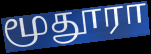
மூதூரா